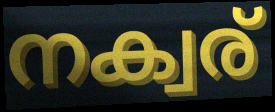
നക്വര്